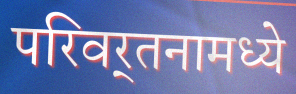
परिवर्तनामध्ये